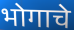
भोगाचे